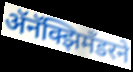
ॲनॅक्झिमँडरने